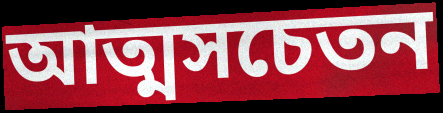
আত্মসচেতন